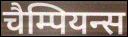
चैम्पियन्स